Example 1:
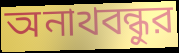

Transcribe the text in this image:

অনাথবন্ধুর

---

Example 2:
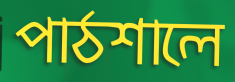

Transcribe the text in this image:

পাঠশালে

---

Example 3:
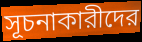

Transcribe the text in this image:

সূচনাকারীদের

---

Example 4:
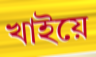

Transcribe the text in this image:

খাইয়ে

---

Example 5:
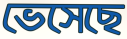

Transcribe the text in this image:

ভেসেছে